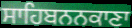
ਸਾਹਿਬਨਨਕਾਣਾ